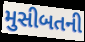
મુસીબતની